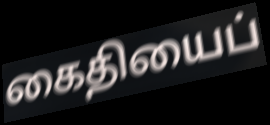
கைதியைப்